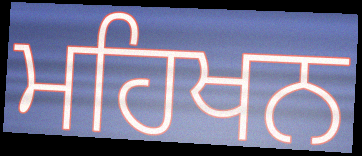
ਮਹਿਖਨ